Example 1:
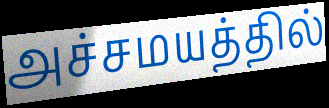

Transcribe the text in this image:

அச்சமயத்தில்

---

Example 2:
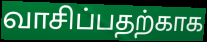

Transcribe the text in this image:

வாசிப்பதற்காக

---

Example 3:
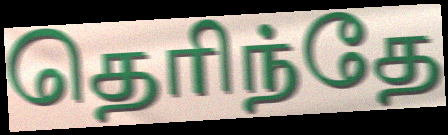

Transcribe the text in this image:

தெரிந்தே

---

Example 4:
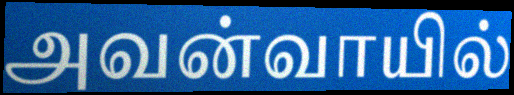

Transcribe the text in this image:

அவன்வாயில்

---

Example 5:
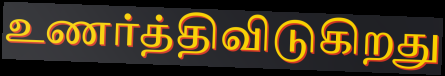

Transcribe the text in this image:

உணர்த்திவிடுகிறது